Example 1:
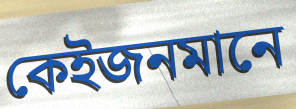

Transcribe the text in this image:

কেইজনমানে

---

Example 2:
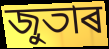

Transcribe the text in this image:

জুতাৰ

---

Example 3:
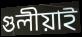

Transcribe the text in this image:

গুলীয়াই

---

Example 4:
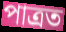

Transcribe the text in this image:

পাত্ৰত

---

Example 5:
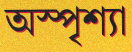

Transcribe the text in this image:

অস্পৃশ্যা